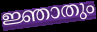
ജ്ഞാതും